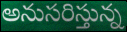
అనుసరిస్తున్న